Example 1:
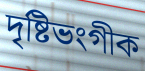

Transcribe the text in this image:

দৃষ্টিভংগীক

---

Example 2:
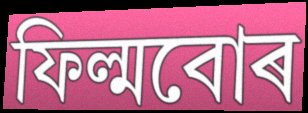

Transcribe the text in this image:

ফিল্মবোৰ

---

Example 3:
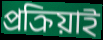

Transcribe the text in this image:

প্ৰক্ৰিয়াই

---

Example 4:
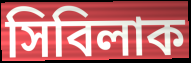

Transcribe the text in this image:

সিবিলাক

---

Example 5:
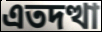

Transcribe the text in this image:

এতদত্থা